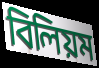
বিলিয়ম